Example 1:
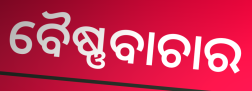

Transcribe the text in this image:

ବୈଷ୍ଣବାଚାର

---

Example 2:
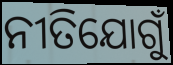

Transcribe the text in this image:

ନୀତିଯୋଗୁଁ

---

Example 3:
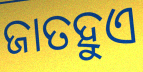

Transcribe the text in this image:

ଜାତହୁଏ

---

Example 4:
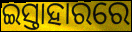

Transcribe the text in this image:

ଇସ୍ତାହାରରେ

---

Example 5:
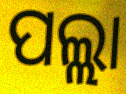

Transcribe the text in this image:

ପଲ୍ଲା